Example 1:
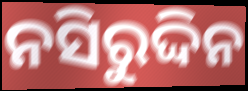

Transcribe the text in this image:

ନସିରୁଦ୍ଦିନ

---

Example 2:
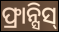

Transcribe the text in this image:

ଫ୍ରାନ୍ସିସ୍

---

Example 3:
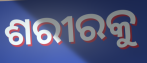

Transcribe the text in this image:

ଶରୀରକୁ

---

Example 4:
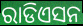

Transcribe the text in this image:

ରାଡିଏସନ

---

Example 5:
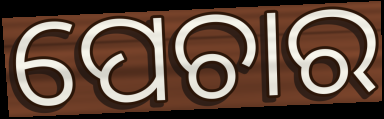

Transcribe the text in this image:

ପେଚାର